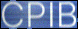
CPIB